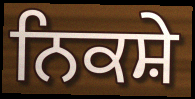
ਨਿਕਸ਼ੇ